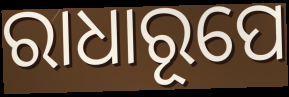
ରାଧାରୂପେ